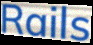
Rails